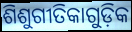
ଶିଶୁଗୀତିକାଗୁଡ଼ିକ